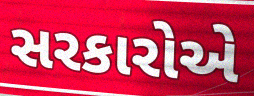
સરકારોએ